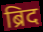
ब्रिद